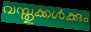
വസ്തുക്കൾക്കും